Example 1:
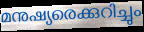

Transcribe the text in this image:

മനുഷ്യരെക്കുറിച്ചും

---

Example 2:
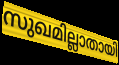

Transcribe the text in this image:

സുഖമില്ലാതായി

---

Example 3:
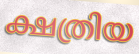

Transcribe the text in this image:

ക്ഷത്രിയ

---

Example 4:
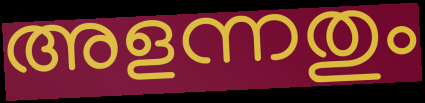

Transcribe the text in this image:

അളന്നതും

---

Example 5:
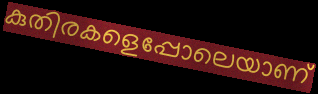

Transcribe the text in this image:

കുതിരകളെപ്പോലെയാണ്